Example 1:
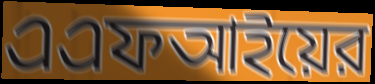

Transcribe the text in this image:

এএফআইয়ের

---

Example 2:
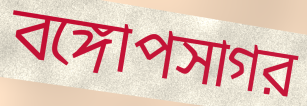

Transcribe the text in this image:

বঙ্গোপসাগর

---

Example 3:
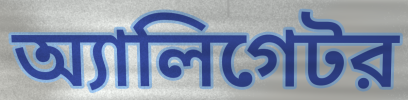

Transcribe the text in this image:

অ্যালিগেটর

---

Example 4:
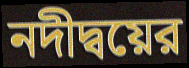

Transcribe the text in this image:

নদীদ্বয়ের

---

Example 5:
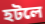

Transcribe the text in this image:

হটলে